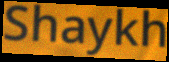
Shaykh